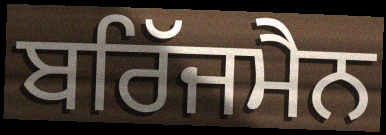
ਬਰਿੱਜਮੈਨ